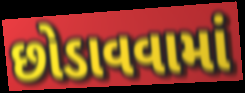
છોડાવવામાં